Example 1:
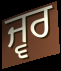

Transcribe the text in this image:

ਜ੍ਵਰ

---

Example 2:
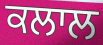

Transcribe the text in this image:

ਕਲਾਲ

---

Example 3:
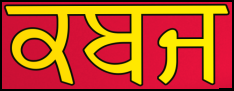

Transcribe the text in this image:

ਕਬਜ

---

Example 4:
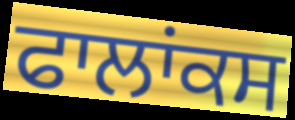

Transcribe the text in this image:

ਫਾਲਾਂਕਸ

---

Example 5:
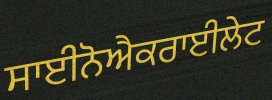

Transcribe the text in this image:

ਸਾਈਨੋਐਕਰਾਈਲੇਟ